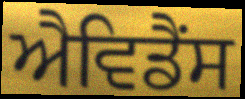
ਐਵਿਡੈਂਸ